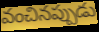
వంచినప్పుడు